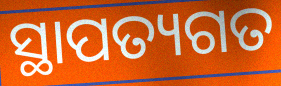
ସ୍ଥାପତ୍ୟଗତ